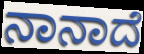
ನಾನಾದೆ